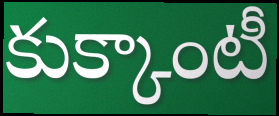
కుక్కాంటీ